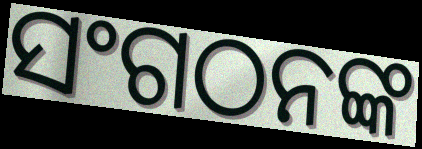
ସଂଗଠନଙ୍କ